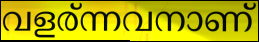
വളര്ന്നവനാണ്